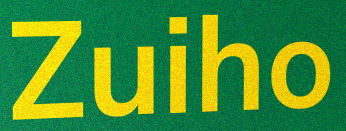
Zuiho